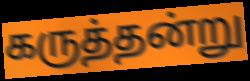
கருத்தன்று